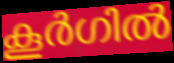
കൂർഗിൽ